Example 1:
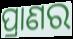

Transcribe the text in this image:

ପ୍ରାଣର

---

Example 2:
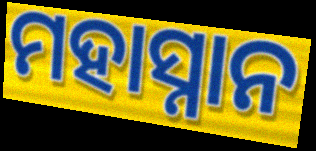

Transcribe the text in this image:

ମହାସ୍ନାନ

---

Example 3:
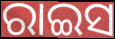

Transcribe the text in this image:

ରାଇସ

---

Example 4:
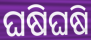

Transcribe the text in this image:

ଘଷିଘଷି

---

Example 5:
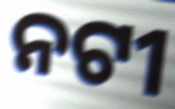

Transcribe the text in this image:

ନଟୀ